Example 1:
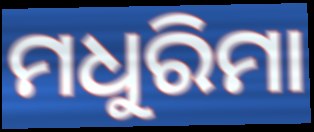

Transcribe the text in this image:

ମଧୁରିମା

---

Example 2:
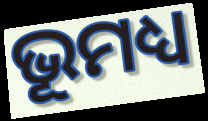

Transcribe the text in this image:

ଭୂମଧ୍ୟ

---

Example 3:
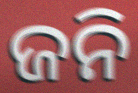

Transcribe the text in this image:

ଜନି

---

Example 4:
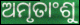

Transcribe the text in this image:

ଅମୃତାଂଶୁ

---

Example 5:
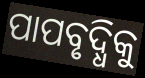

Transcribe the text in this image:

ପାପବୃଦ୍ଧିକୁ